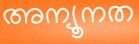
അന്യൂനത